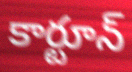
కార్టూన్